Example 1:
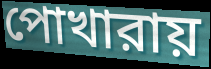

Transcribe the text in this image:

পোখারায়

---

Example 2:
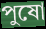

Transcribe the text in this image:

পুষো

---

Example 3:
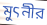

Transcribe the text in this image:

মুৎনীর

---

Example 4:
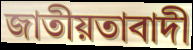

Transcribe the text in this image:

জাতীয়তাবাদী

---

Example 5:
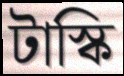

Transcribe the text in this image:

টাস্কি